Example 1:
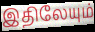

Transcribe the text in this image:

இதிலேயும்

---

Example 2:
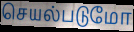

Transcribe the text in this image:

செயல்படுமோ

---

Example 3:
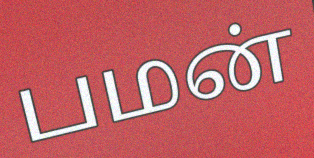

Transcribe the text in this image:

பமன்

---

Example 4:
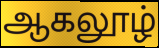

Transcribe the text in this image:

ஆகலூழ்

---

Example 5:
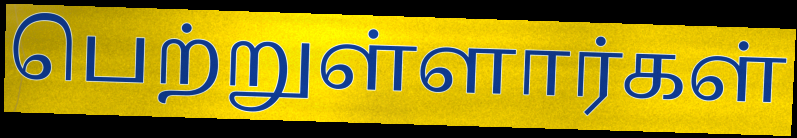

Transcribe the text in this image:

பெற்றுள்ளார்கள்